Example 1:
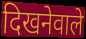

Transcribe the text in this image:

दिखनेवाले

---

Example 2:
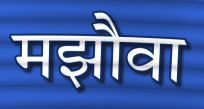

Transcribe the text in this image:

मझौवा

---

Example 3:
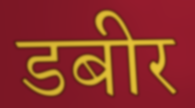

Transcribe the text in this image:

डबीर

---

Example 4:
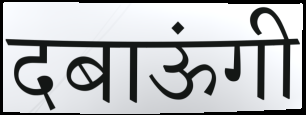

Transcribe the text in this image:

दबाऊंगी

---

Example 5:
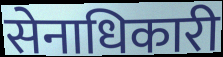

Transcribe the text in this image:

सेनाधिकारी